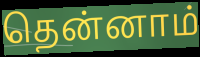
தென்னாம்